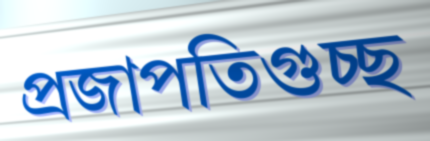
প্রজাপতিগুচ্ছ